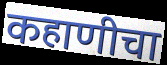
कहाणीचा